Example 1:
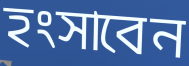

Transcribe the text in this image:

হংসাবেন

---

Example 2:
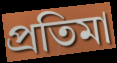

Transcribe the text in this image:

প্রতিমা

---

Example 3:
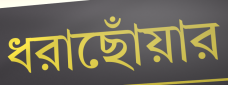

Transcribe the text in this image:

ধরাছোঁয়ার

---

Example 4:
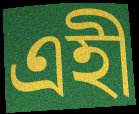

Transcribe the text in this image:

এহী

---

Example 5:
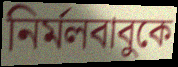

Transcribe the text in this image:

নির্মলবাবুকে